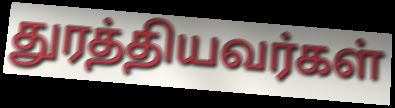
துரத்தியவர்கள்